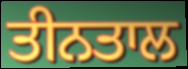
ਤੀਨਤਾਲ